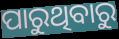
ପାରୁଥିବାରୁ